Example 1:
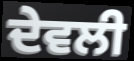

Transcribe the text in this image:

ਦੇਵਲੀ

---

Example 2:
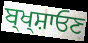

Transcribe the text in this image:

ਬ੍ਖ੍ਸ਼ਾਓਣ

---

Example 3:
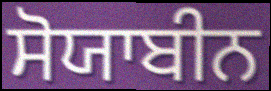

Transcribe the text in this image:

ਸੋਯਾਬੀਨ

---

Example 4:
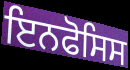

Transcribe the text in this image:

ਇਨਫੋਸਿਸ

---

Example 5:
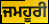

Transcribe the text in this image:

ਜਮਹੂਰੀ